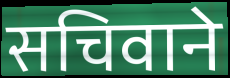
सचिवाने